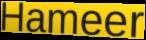
Hameer